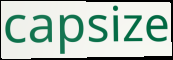
capsize